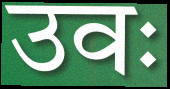
उवः